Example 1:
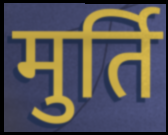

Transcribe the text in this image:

मुर्ति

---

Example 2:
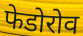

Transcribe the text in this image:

फेडोरोव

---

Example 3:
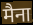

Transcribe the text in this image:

मैना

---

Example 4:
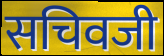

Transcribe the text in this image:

सचिवजी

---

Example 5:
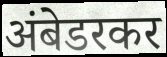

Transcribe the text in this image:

अंबेडरकर